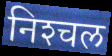
निश्चल